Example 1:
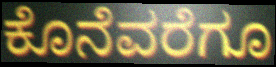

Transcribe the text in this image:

ಕೊನೆವರೆಗೂ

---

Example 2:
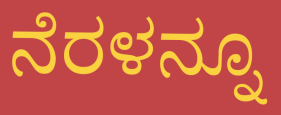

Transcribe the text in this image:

ನೆರಳನ್ನೂ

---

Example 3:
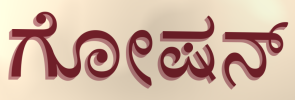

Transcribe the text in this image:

ಗೋಷನ್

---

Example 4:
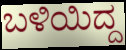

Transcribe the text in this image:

ಬಳಿಯಿದ್ದ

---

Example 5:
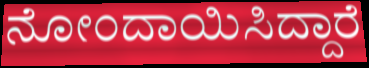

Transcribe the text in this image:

ನೋಂದಾಯಿಸಿದ್ದಾರೆ